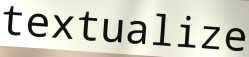
textualize